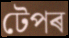
টেপৰ